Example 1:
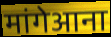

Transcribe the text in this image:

मांगेआना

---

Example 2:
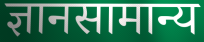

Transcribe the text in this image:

ज्ञानसामान्य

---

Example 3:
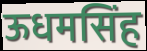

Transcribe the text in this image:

ऊधमसिंह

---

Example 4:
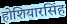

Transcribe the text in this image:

होशियारसिंह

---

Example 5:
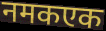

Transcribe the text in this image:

नमकएक